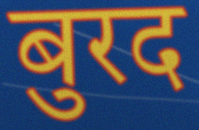
बुरद